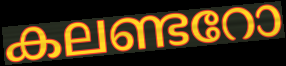
കലണ്ടറോ